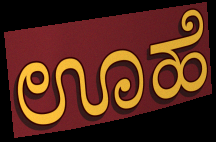
ಊಹೆ